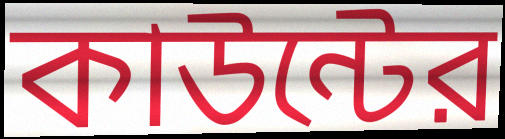
কাউন্টের